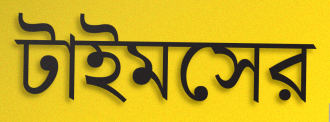
টাইমসের